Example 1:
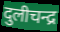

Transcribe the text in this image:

दुलीचन्द्र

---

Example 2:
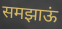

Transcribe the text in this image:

समझाऊं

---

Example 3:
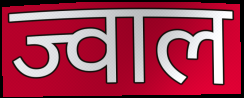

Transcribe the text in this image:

ज्वाल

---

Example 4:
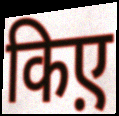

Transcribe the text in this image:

किए़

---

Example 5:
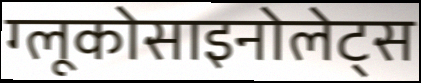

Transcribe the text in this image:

ग्लूकोसाइनोलेट्स